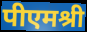
पीएमश्री